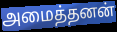
அமைத்தனன்